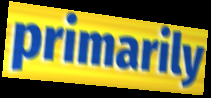
primarily